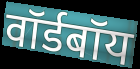
वॉर्डबॉय